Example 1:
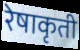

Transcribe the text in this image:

रेषाकृती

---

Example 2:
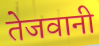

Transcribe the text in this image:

तेजवानी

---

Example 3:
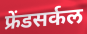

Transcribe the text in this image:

फ्रेंडसर्कल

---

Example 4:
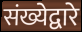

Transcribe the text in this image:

संख्येद्वारे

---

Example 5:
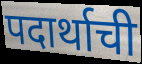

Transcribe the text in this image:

पदार्थाची